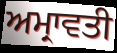
ਅਮ੍ਰਾਵਤੀ